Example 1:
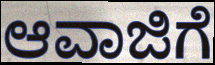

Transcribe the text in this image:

ಆವಾಜಿಗೆ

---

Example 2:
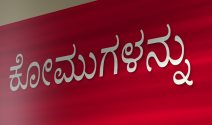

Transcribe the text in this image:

ಕೋಮುಗಳನ್ನು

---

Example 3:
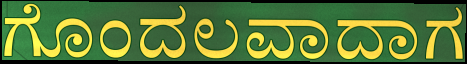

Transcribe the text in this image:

ಗೊಂದಲವಾದಾಗ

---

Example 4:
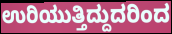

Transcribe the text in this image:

ಉರಿಯುತ್ತಿದ್ದುದರಿಂದ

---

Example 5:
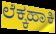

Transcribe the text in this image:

ಲೆಕ್ಕಹಾಕಿ